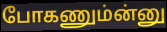
போகணும்ன்னு